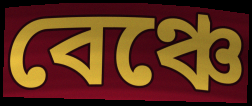
বেঞ্চে